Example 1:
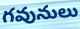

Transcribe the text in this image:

గవునులు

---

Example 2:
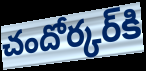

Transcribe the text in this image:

చందోర్కర్‌కి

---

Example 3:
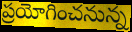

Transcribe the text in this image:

ప్రయోగించనున్న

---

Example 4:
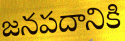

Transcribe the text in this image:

జనపదానికి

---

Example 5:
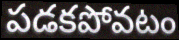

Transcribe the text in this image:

పడకపోవటం